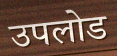
उपलोड